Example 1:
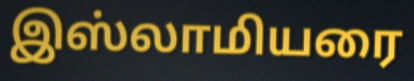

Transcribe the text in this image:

இஸ்லாமியரை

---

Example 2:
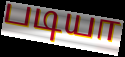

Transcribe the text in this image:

படியா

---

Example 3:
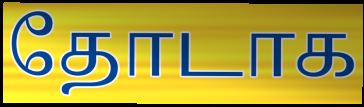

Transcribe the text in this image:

தோடாக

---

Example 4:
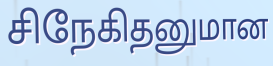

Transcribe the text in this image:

சிநேகிதனுமான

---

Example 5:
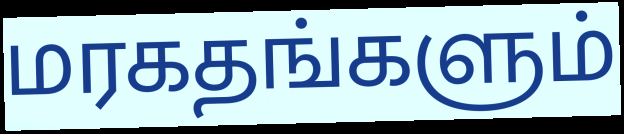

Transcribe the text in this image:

மரகதங்களும்